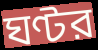
ঘণ্টর